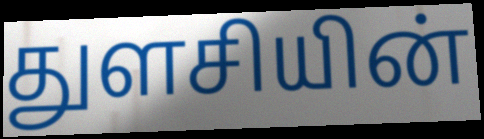
துளசியின்